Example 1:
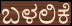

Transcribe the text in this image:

ಬಳಲಿಕೆ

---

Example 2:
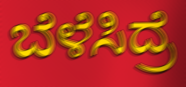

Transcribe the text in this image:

ಬೆಳೆಸಿದ್ರೆ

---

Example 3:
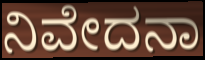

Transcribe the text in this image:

ನಿವೇದನಾ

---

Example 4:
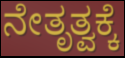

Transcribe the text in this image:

ನೇತೃತ್ವಕ್ಕೆ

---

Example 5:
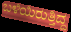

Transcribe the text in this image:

ಬಳಿಯಿರುತ್ತಿದ್ದ